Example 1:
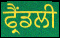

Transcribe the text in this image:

ਫ੍ਰੈਂਡਲੀ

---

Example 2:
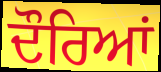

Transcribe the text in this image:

ਦੌਰਿਆਂ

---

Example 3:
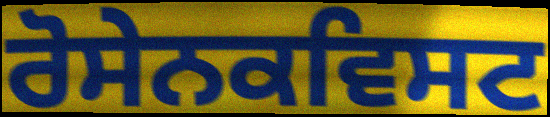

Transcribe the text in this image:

ਰੋਸੇਨਕਵਿਸਟ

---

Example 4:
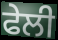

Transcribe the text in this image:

ਫੇਲੀ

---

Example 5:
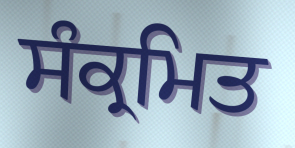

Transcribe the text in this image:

ਸੰਕ੍ਰਮਿਤ